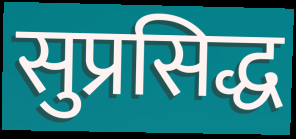
सुप्रसिद्ध